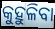
କୁହୁଳିବା